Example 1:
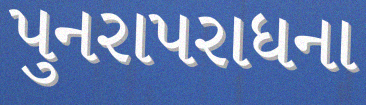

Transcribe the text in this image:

પુનરાપરાધના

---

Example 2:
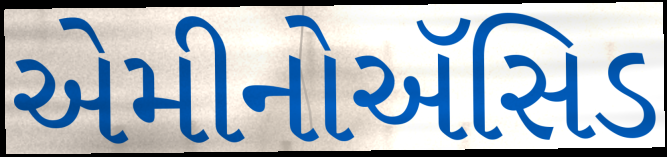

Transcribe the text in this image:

એમીનોઍસિડ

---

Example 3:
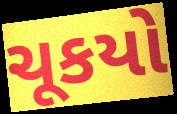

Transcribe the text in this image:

ચૂકયો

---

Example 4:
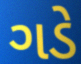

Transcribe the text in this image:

ગડે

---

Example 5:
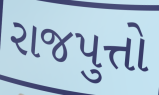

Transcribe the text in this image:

રાજપુત્તો